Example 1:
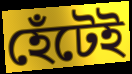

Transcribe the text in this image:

হেঁটেই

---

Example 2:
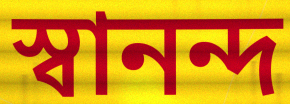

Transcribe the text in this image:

স্বানন্দ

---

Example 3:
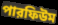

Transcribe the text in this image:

পারফিউম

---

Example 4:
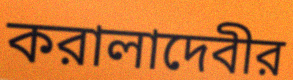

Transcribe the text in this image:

করালাদেবীর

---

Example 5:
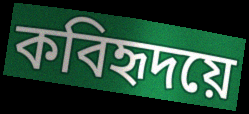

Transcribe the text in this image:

কবিহৃদয়ে